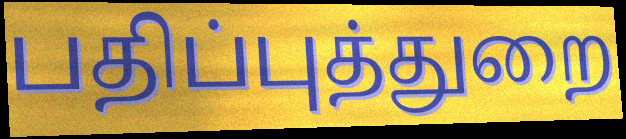
பதிப்புத்துறை